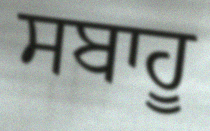
ਸਬਾਹੂ